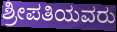
ಶ್ರೀಪತಿಯವರು